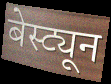
बेस्ट्यून